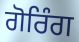
ਗੋਰਿੰਗ